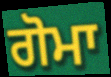
ਗੋਮਾ